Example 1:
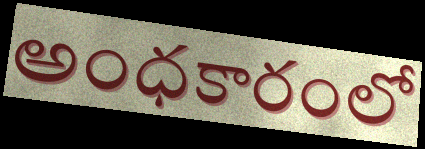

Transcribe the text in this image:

అంధకారంలో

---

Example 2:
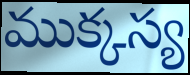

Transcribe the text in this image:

ముక్కస్య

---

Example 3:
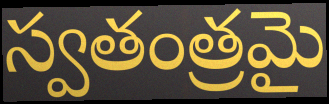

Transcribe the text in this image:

స్వతంత్రమై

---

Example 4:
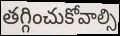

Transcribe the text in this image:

తగ్గించుకోవాల్సి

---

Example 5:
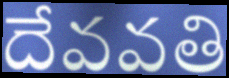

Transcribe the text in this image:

దేవవతి